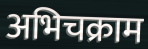
अभिचक्राम